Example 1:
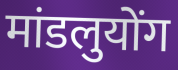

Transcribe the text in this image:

मांडलुयोंग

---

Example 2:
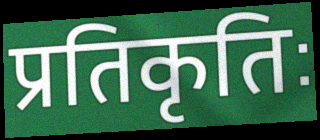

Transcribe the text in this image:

प्रतिकृतिः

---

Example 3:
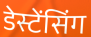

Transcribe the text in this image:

डेस्टेंसिंग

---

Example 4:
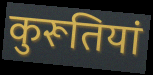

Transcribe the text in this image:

कुरूतियां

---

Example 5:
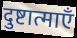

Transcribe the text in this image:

दुष्टात्माएँ